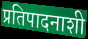
प्रतिपादनाशी